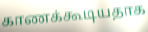
காணக்கூடியதாக